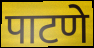
पाटणे